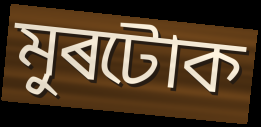
মুৰটোক